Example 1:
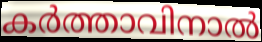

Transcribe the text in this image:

കർത്താവിനാൽ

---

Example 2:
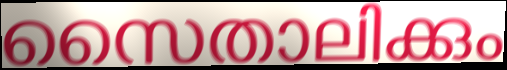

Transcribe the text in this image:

സൈതാലിക്കും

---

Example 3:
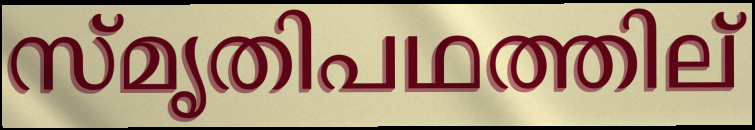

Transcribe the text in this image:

സ്മൃതിപഥത്തില്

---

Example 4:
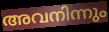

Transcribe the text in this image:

അവനിന്നും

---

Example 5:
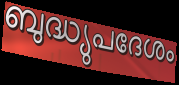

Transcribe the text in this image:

ബുദ്ധ്യുപദേശം